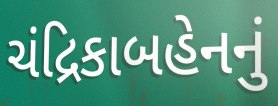
ચંદ્રિકાબહેનનું